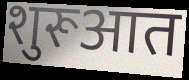
शुरूआत